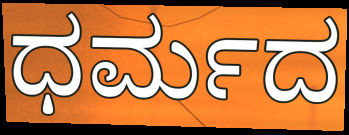
ಧರ್ಮದ